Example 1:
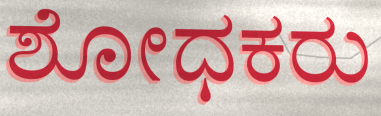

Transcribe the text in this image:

ಶೋಧಕರು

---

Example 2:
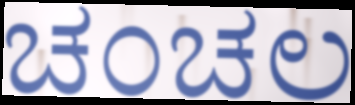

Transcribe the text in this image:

ಚಂಚಲ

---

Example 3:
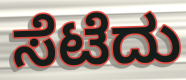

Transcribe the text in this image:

ಸೆಟೆದು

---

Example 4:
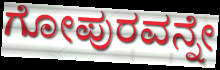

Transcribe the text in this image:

ಗೋಪುರವನ್ನೇ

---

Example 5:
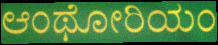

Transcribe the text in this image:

ಆಂಥೋರಿಯಂ